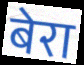
बेरा